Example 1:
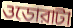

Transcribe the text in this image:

ওডোরাটা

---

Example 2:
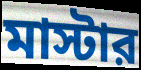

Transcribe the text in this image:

মাস্টার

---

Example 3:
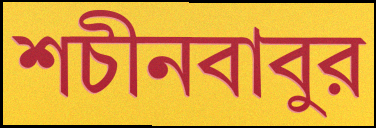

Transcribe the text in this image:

শচীনবাবুর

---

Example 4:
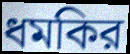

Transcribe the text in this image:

ধমকির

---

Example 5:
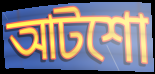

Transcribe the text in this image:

আটশো